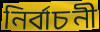
নির্বাচনী